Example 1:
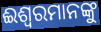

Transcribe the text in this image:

ଈଶ୍ୱରମାନଙ୍କୁ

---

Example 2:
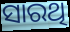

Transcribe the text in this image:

ସାରଥି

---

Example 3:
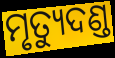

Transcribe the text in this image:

ମୃତ୍ୟୁଦଣ୍ଡ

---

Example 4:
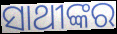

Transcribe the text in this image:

ସାଥୀଙ୍କର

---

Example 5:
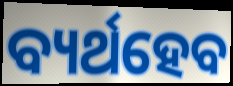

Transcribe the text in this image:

ବ୍ୟର୍ଥହେବ